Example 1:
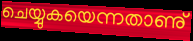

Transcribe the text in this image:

ചെയ്യുകയെന്നതാണു്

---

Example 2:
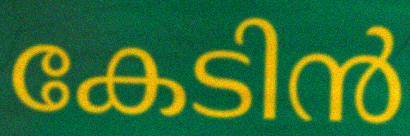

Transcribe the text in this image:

കേടിൻ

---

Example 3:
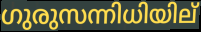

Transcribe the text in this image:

ഗുരുസന്നിധിയില്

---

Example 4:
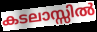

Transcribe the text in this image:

കടലാസ്സിൽ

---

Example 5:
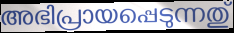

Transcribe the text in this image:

അഭിപ്രായപ്പെടുന്നതു്